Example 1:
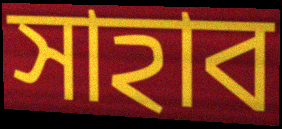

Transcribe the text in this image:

সাহাব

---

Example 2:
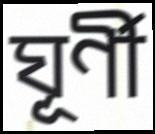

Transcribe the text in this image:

ঘূৰ্ণী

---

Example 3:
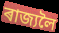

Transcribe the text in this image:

ৰাজ্যলৈ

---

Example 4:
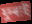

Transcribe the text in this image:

ফুৰাই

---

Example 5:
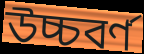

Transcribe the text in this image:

উচ্চবৰ্ণ